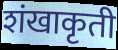
शंखाकृती